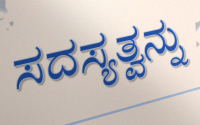
ಸದಸ್ಯತ್ವನ್ನು